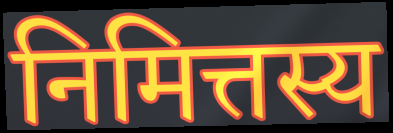
निमित्तस्य